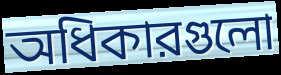
অধিকারগুলো